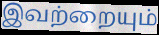
இவற்றையும்